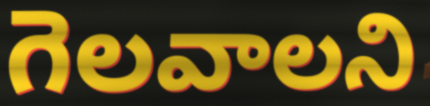
గెలవాలని